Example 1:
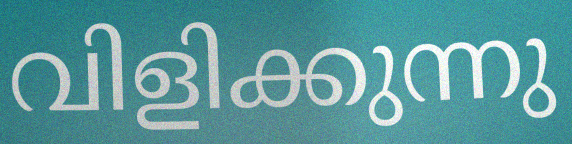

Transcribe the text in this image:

വിളിക്കുന്നു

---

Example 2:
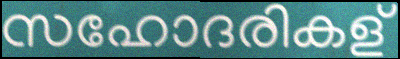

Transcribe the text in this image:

സഹോദരികള്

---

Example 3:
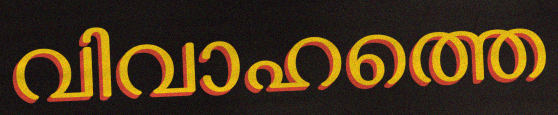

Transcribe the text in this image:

വിവാഹത്തെ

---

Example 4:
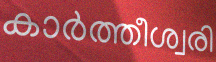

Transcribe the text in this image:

കാർത്തീശ്വരി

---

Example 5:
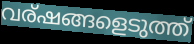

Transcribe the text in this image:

വര്ഷങ്ങളെടുത്ത്